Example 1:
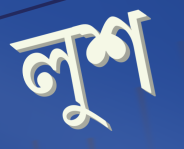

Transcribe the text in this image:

লুশ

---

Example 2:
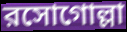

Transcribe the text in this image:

রসোগোল্লা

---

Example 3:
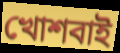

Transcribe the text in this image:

খোশবাই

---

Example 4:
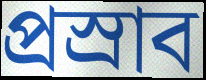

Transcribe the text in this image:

প্রস্রাব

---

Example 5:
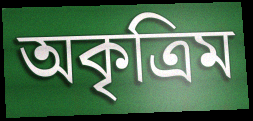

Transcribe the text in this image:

অকৃত্রিম